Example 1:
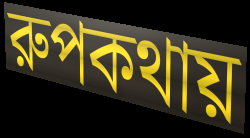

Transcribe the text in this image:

রুপকথায়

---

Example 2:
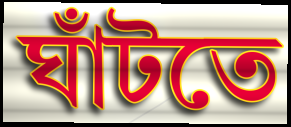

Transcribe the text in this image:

ঘাঁটতে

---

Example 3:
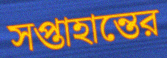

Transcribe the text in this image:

সপ্তাহান্তের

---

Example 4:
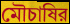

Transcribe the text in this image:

মৌচাষির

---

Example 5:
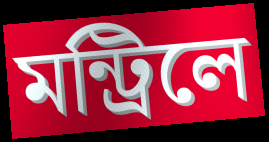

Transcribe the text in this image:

মন্ট্রিলে